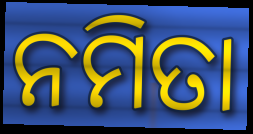
ନମିତା